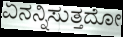
ಏನನ್ನಿಸುತ್ತದೋ